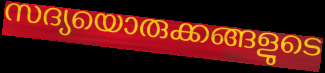
സദ്യയൊരുക്കങ്ങളുടെ